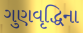
ગુણવૃદ્ધિના